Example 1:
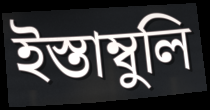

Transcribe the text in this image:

ইস্তাম্বুলি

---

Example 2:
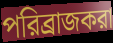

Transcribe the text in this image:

পরিব্রাজকরা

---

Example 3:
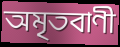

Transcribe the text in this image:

অমৃতবাণী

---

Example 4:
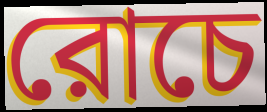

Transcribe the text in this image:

রোচে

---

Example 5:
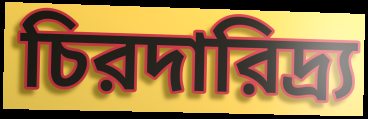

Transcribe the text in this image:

চিরদারিদ্র্য